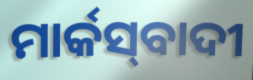
ମାର୍କସ୍‍ବାଦୀ